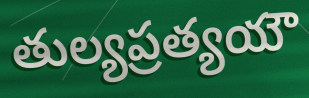
తుల్యప్రత్యయౌ